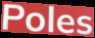
Poles